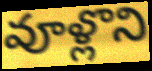
వూళ్లొని